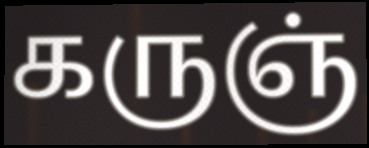
கருஞ்